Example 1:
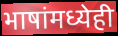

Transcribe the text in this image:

भाषांमध्येही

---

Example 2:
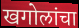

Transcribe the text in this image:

खगोलांचा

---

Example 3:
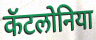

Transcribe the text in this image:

कॅटलोनिया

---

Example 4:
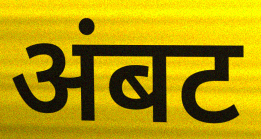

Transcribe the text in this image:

अंबट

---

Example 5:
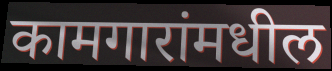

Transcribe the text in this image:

कामगारांमधील